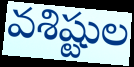
వశిష్టుల